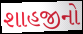
શાહજીનો